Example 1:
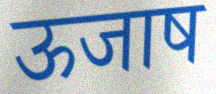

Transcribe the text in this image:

ऊजाष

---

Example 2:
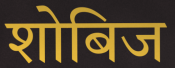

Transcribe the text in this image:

शोबिज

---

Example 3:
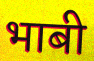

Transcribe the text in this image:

भाबी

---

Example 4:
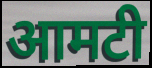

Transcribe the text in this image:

आमटी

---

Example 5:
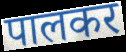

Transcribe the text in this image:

पालकर